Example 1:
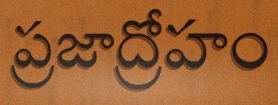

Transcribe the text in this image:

ప్రజాద్రోహం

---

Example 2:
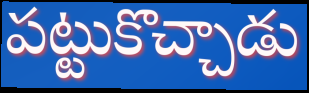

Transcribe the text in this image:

పట్టుకొచ్చాడు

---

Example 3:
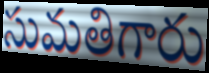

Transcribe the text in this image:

సుమతిగారు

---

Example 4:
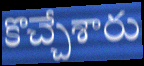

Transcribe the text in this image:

కొచ్చేశారు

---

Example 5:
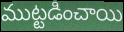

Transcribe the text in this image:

ముట్టడించాయి